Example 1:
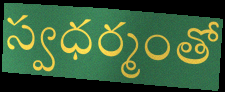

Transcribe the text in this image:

స్వధర్మంతో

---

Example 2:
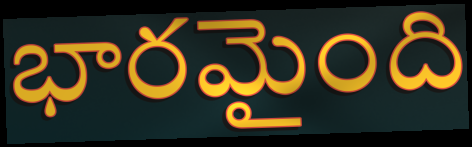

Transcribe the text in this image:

భారమైంది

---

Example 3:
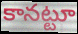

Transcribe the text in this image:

కానట్టూ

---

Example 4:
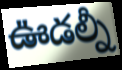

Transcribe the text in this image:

ఊడల్నీ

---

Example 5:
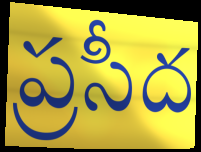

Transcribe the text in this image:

ప్రసీద